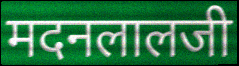
मदनलालजी